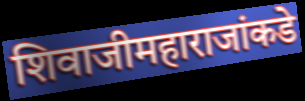
शिवाजीमहाराजांकडे